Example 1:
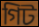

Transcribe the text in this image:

গিট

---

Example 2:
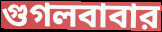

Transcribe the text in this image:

গুগলবাবার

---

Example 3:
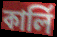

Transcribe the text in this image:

কার্লি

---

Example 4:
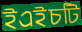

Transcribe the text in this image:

ইএইচটি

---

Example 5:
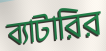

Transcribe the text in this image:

ব্যাটারির